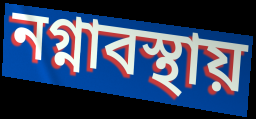
নগ্নাবস্থায়